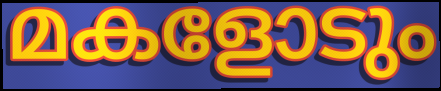
മകളോടും